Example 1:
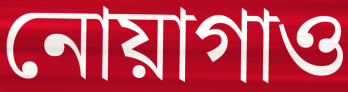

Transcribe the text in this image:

নোয়াগাও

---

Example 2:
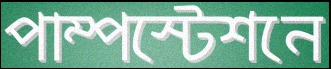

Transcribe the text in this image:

পাম্পস্টেশনে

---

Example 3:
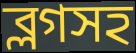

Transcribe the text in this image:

ব্লগসহ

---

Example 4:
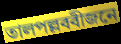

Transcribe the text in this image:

তালপল্লববীজনে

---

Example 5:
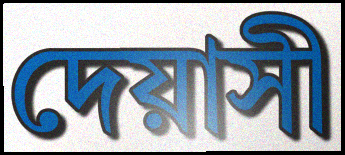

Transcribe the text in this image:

দেয়াসী